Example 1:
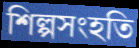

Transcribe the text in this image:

শিল্পসংহতি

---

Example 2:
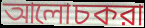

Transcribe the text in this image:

আলোচকরা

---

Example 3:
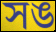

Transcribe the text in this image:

সঙ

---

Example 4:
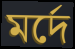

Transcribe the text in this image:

মর্দে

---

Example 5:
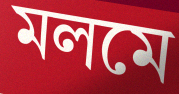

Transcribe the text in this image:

মলমে